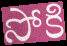
సోకి